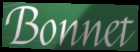
Bonnet